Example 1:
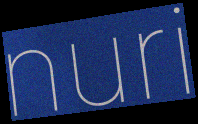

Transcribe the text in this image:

nuri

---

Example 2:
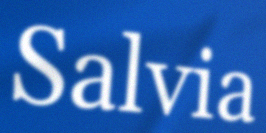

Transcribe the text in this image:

Salvia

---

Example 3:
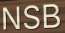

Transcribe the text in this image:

NSB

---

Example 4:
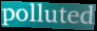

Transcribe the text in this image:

polluted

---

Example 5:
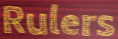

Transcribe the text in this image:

Rulers